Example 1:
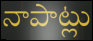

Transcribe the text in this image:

నాపాట్లు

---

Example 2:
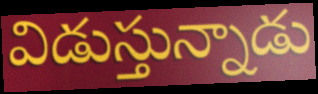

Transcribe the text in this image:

విడుస్తున్నాడు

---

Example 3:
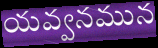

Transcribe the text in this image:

యవ్వనమున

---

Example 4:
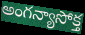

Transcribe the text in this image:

అంగన్యాసోక్త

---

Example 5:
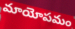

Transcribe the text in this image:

మాయోపమం